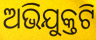
ଅଭିଯୁକ୍ତଟି